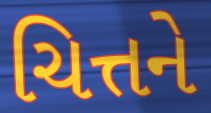
ચિત્તને